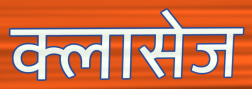
क्लासेज